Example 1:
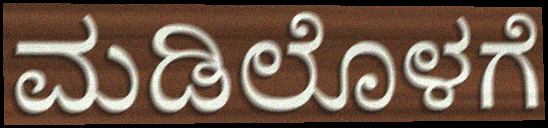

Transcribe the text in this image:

ಮಡಿಲೊಳಗೆ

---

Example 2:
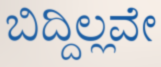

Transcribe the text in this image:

ಬಿದ್ದಿಲ್ಲವೇ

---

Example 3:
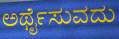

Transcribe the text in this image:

ಅರ್ಥೈಸುವದು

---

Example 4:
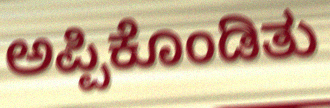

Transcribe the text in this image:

ಅಪ್ಪಿಕೊಂಡಿತು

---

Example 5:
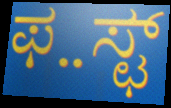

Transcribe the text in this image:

ಫ಼ಸ್ಟ್